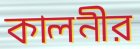
কালনীর